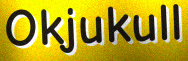
Okjukull